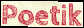
Poetik